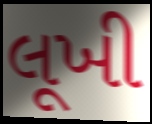
લૂખી